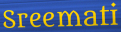
Sreemati